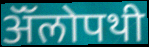
ॲॅलोपथी